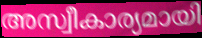
അസ്വീകാര്യമായി